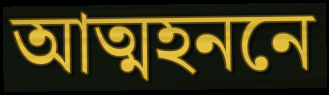
আত্মহননে